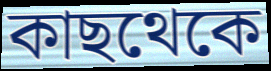
কাছথেকে